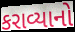
કરાવ્યાનો